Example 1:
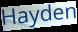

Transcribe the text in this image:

Hayden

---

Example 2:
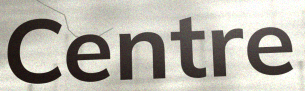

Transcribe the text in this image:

Centre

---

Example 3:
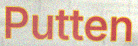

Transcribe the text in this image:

Putten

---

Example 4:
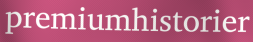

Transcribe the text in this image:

premiumhistorier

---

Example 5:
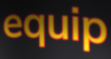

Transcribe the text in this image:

equip